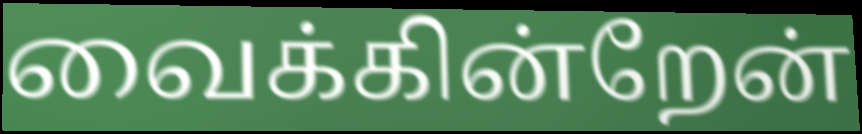
வைக்கின்றேன்